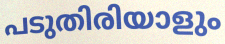
പടുതിരിയാളും